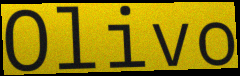
Olivo